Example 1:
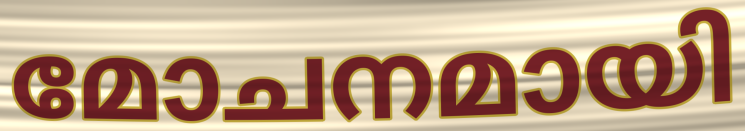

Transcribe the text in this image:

മോചനമായി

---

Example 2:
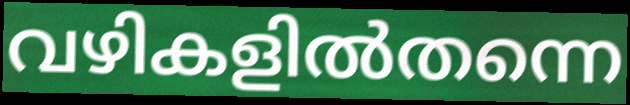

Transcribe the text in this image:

വഴികളിൽതന്നെ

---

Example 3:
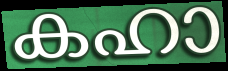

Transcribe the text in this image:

കഹാ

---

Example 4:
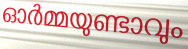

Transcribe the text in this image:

ഓർമ്മയുണ്ടാവും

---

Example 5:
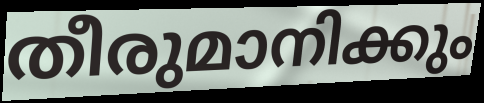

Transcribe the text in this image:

തീരുമാനിക്കും